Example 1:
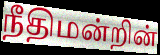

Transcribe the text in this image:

நீதிமன்றின்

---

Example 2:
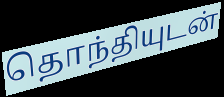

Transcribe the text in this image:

தொந்தியுடன்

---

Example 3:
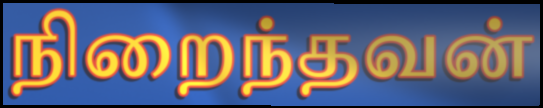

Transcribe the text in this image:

நிறைந்தவன்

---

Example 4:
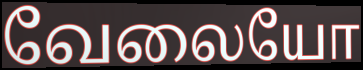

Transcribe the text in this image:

வேலையோ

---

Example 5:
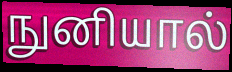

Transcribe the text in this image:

நுனியால்